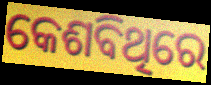
କେଶବିଥିରେ